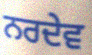
ਨਰਦੇਵ